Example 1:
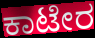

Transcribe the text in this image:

ಕಾಟೇರ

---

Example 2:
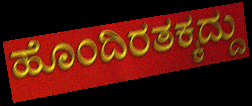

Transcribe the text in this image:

ಹೊಂದಿರತಕ್ಕದ್ದು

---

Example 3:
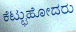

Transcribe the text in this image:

ಕೆಟ್ಟುಹೋದರು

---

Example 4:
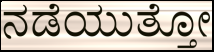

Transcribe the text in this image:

ನಡೆಯುತ್ತೋ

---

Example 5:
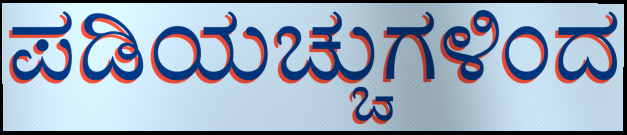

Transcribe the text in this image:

ಪಡಿಯಚ್ಚುಗಳಿಂದ